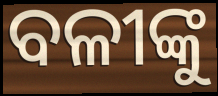
ବଳୀଙ୍କୁ